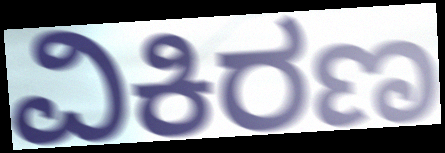
ವಿಕಿರಣ